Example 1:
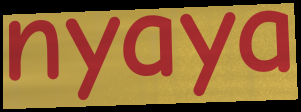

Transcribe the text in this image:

nyaya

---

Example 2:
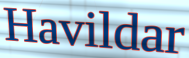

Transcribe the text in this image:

Havildar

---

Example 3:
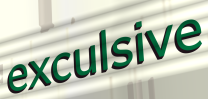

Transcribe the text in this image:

exculsive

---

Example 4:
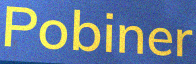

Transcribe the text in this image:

Pobiner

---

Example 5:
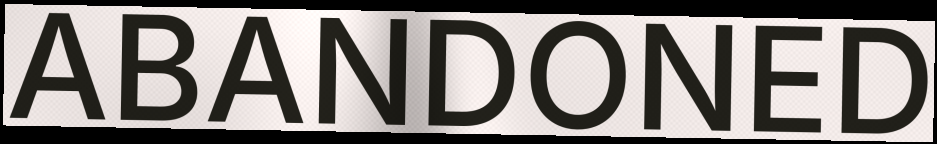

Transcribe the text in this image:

ABANDONED